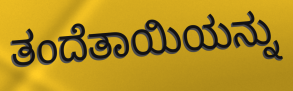
ತಂದೆತಾಯಿಯನ್ನು